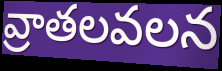
వ్రాతలవలన